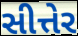
સીત્તેર